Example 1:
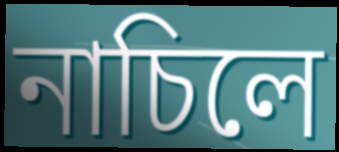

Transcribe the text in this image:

নাচিলে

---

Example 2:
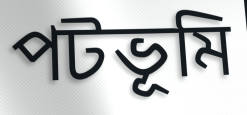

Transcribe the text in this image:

পটভূমি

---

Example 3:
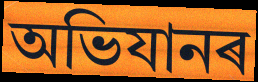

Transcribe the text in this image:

অভিযানৰ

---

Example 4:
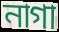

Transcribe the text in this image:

নাগা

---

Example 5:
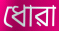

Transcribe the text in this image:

ধোৱা